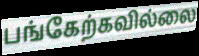
பங்கேற்கவில்லை